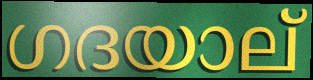
ഗദയാല്